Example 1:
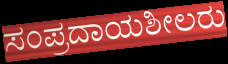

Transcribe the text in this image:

ಸಂಪ್ರದಾಯಶೀಲರು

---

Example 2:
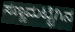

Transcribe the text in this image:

ಸಣ್ಣಮಟ್ಟಿಗಿನ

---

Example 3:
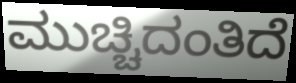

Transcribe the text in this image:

ಮುಚ್ಚಿದಂತಿದೆ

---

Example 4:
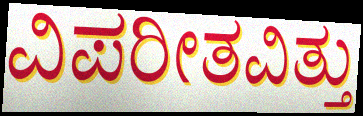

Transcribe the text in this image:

ವಿಪರೀತವಿತ್ತು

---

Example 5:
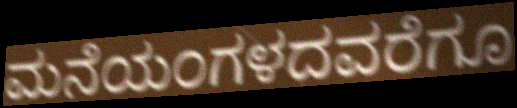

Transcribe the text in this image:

ಮನೆಯಂಗಳದವರೆಗೂ